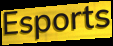
Esports